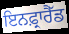
ਇਨਫ਼੍ਰਾਰੈੱਡ